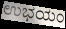
ಉಭಯಂ